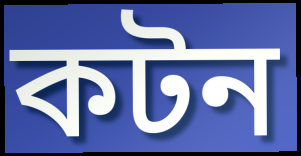
কটন